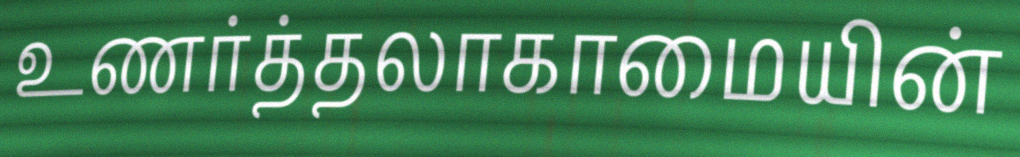
உணர்த்தலாகாமையின்